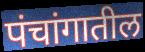
पंचांगातील